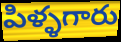
పిళ్ళగారు